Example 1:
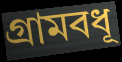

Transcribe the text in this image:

গ্রামবধূ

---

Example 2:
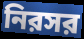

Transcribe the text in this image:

নিরসর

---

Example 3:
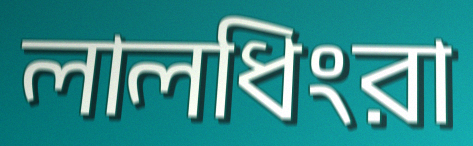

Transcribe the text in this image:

লালধিংরা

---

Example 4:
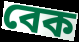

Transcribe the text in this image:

বেক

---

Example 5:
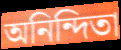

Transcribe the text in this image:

অনিন্দিতা